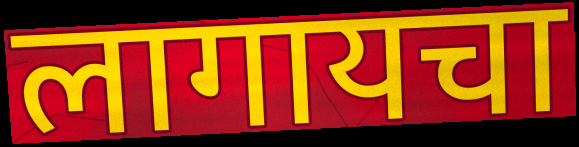
लागायचा